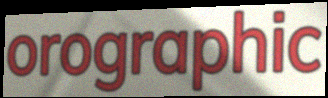
orographic